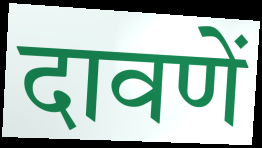
दावणें